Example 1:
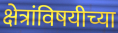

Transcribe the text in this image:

क्षेत्रांविषयीच्या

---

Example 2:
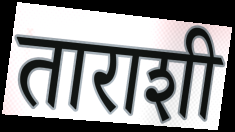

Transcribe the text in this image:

ताराशी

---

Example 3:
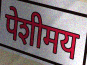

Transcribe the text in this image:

पेशीमय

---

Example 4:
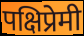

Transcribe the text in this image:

पक्षिप्रेमी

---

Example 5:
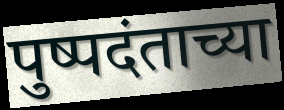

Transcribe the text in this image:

पुष्पदंताच्या